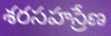
శరసహస్రేణ